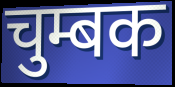
चुम्बक